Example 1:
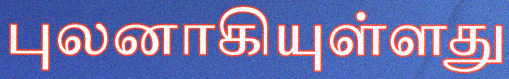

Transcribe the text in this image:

புலனாகியுள்ளது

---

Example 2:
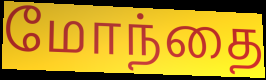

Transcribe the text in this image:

மோந்தை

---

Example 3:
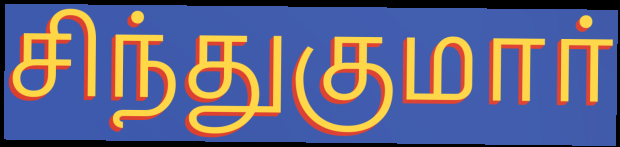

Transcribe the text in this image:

சிந்துகுமார்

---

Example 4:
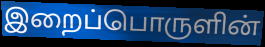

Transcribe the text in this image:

இறைப்பொருளின்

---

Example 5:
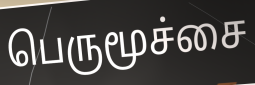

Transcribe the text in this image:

பெருமூச்சை